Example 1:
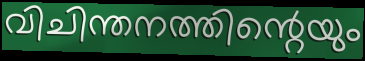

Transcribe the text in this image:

വിചിന്തനത്തിന്റെയും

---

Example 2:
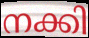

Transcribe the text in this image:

നക്കി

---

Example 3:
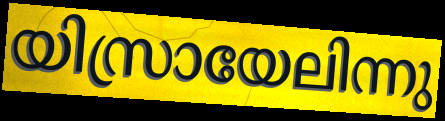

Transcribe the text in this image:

യിസ്രായേലിന്നു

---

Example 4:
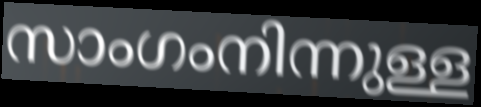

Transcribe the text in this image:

സാംഗംനിന്നുള്ള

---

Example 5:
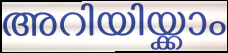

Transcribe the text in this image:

അറിയിയ്ക്കാം